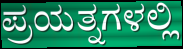
ಪ್ರಯತ್ನಗಳಲ್ಲಿ